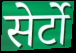
सेर्टो